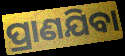
ପ୍ରାଣଯିବା